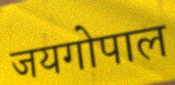
जयगोपाल